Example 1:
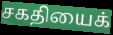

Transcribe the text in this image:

சகதியைக்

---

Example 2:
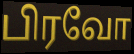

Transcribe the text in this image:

பிரவோ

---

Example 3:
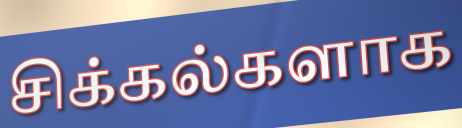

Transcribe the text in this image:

சிக்கல்களாக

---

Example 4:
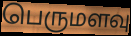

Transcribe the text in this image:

பெருமளவு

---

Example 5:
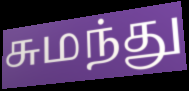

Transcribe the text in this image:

சுமந்து